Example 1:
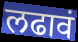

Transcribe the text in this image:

लढावं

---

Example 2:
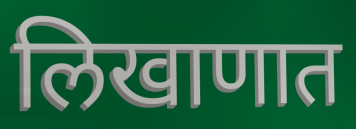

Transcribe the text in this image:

लिखाणात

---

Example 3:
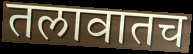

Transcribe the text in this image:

तलावातच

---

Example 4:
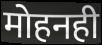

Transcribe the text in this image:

मोहनही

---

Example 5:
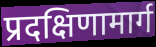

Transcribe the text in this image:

प्रदक्षिणामार्ग